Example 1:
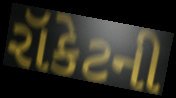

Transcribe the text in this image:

રૉકેટની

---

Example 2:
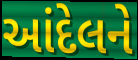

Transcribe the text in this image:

આંદેલને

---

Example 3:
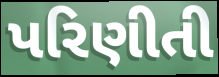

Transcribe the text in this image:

પરિણીતી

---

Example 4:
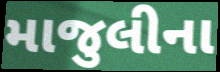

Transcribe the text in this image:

માજુલીના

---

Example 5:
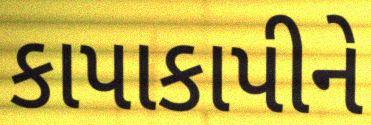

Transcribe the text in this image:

કાપાકાપીને